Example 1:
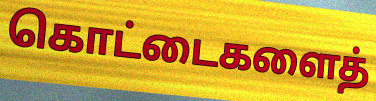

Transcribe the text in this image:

கொட்டைகளைத்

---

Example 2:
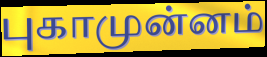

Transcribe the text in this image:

புகாமுன்னம்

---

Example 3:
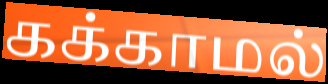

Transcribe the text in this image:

கக்காமல்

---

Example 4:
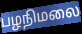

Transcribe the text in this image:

பழநிமலை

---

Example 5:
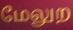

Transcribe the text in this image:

மேலுற